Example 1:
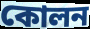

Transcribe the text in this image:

কোলন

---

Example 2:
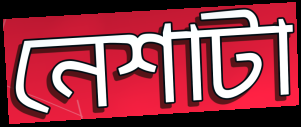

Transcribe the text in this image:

নেশাটা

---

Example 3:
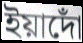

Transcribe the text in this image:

ইয়াদোঁ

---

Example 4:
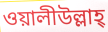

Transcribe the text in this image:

ওয়ালীউল্লাহ্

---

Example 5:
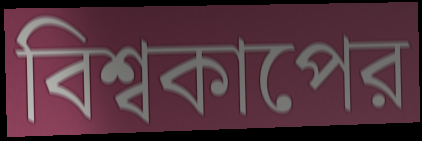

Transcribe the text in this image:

বিশ্বকাপের